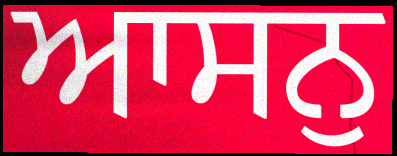
ਆਸਨੁ